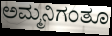
ಅಮ್ಮನಿಗಂತೂ